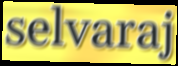
selvaraj